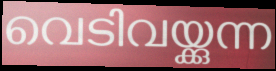
വെടിവയ്ക്കുന്ന